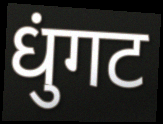
धुंगट